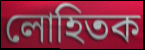
লোহিতক